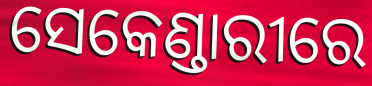
ସେକେଣ୍ଡାରୀରେ